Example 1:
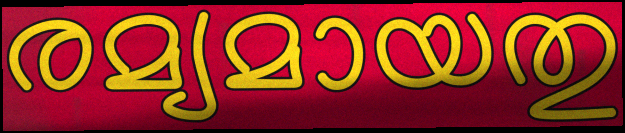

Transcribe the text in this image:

രമ്യമായതു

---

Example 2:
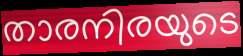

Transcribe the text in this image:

താരനിരയുടെ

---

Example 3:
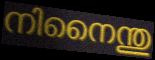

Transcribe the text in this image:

നിനൈന്തു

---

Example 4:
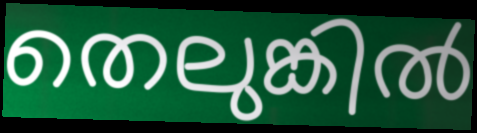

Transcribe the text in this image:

തെലുങ്കിൽ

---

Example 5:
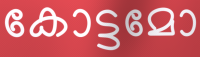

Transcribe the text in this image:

കോട്ടമോ